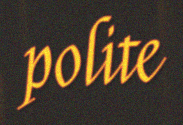
polite